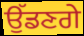
ਉੱਡਣਗੇ